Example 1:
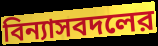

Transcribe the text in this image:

বিন্যাসবদলের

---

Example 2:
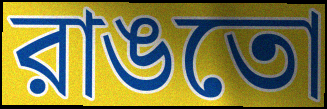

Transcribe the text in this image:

রাঙতো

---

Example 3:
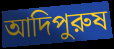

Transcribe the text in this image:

আদিপুরুষ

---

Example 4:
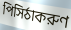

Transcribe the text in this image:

পিসিঠাকরুণ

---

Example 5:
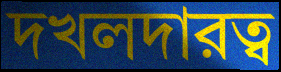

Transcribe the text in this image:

দখলদারত্ব